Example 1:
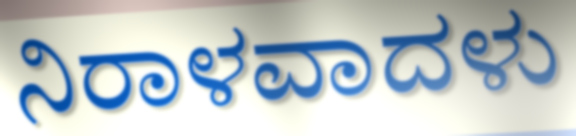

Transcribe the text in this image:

ನಿರಾಳವಾದಳು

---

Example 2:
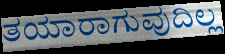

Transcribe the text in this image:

ತಯಾರಾಗುವುದಿಲ್ಲ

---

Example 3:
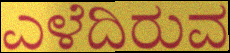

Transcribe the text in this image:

ಎಳೆದಿರುವ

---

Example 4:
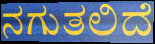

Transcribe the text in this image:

ನಗುತಲಿದೆ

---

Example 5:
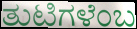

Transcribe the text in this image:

ತುಟಿಗಳೆಂಬ